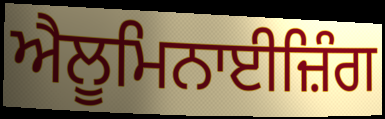
ਐਲੂਮਿਨਾਈਜ਼ਿੰਗ